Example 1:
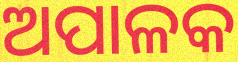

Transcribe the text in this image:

ଅପାଳକ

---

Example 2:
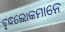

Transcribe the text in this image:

ବୃଦ୍ଧଲୋକମାନେ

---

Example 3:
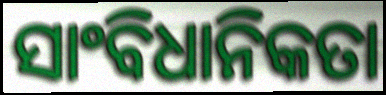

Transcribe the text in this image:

ସାଂବିଧାନିକତା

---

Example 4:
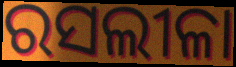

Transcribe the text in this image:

ରସଲୀଳା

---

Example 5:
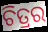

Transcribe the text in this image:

ଚିତ୍ରର